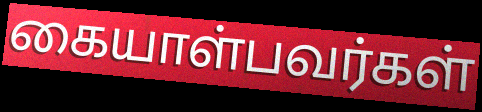
கையாள்பவர்கள்